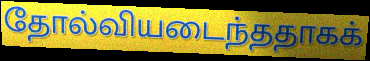
தோல்வியடைந்ததாகக்